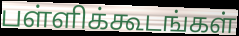
பள்ளிக்கூடங்கள்